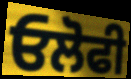
ਓਲੋਫੀ